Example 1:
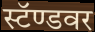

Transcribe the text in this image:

स्टॅण्डवर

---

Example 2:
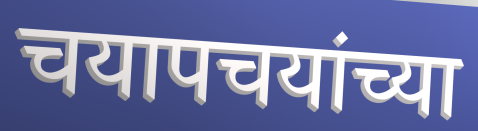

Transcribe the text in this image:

चयापचयांच्या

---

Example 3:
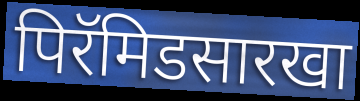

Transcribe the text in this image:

पिरॅमिडसारखा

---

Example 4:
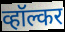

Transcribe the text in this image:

व्हॉल्कर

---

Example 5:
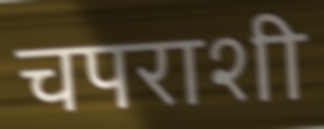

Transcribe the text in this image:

चपराशी